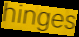
hinges